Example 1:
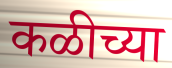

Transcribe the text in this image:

कळीच्या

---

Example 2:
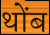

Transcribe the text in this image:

थोंब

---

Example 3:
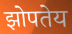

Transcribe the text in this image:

झोपतेय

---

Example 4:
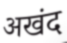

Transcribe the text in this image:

अखंद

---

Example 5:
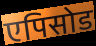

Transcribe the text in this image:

एपिसोड